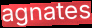
agnates